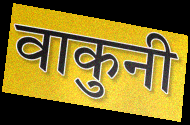
वाकुनी